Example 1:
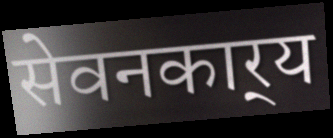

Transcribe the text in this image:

सेवनकार्य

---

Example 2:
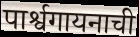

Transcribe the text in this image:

पार्श्वगायनाची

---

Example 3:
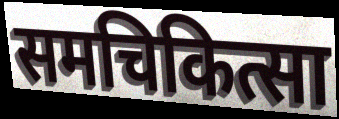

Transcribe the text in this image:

समचिकित्सा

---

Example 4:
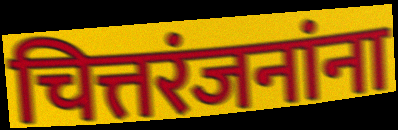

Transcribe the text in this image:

चित्तरंजनांना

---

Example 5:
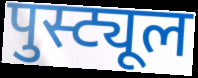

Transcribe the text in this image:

पुस्ट्यूल